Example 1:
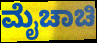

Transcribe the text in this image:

ಮೈಚಾಚಿ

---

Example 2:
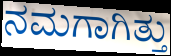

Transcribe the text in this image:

ನಮಗಾಗಿತ್ತು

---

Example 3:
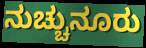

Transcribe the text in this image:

ನುಚ್ಚುನೂರು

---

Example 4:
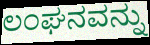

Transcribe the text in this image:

ಲಂಘನವನ್ನು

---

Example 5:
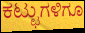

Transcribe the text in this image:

ಕಟ್ಟುಗಳಿಗೂ